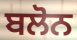
ਬਲੋਨ